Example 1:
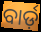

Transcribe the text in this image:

ବାର୍ଡ଼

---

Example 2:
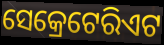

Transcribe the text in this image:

ସେକ୍ରେଟେରିଏଟ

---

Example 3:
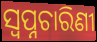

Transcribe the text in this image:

ସ୍ୱପ୍ନଚାରିଣୀ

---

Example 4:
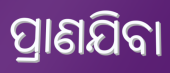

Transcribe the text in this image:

ପ୍ରାଣଯିବା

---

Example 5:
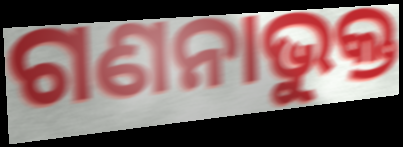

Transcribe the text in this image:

ଗଣନାଭୁକ୍ତ